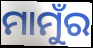
ମାମୁଁର